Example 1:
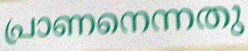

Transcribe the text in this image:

പ്രാണനെന്നതു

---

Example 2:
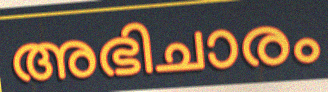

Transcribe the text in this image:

അഭിചാരം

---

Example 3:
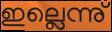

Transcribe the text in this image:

ഇല്ലെന്നു്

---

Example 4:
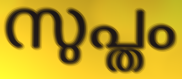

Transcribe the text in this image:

സുപ്തം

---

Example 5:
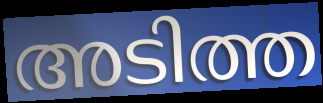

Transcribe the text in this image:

അടിത്ത